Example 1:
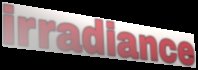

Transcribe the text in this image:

irradiance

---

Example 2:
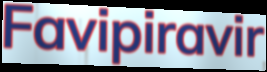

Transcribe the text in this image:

Favipiravir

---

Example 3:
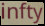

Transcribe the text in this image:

infty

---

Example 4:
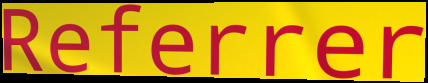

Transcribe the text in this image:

Referrer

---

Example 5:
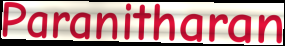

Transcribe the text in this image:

Paranitharan